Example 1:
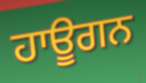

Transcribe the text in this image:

ਹਾਊਗਨ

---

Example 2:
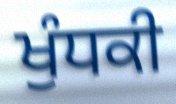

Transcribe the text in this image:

ਖੁੰਧਕੀ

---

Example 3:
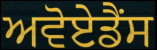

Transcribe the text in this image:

ਅਵੋਏਡੈਂਸ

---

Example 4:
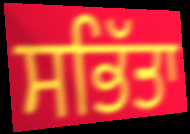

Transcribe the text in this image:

ਸਭਿੱਤਾ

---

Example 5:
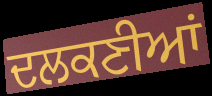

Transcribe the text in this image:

ਦਲਕਣੀਆਂ